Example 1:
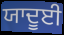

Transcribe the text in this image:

ਯਾਦੂਈ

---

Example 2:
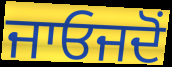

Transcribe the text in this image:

ਜਾਓਜਦੋਂ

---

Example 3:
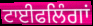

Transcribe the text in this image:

ਟਾਈਫਲਿੰਗਾਂ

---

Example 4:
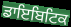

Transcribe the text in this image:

ਡਾਇਬਿਟਿਕ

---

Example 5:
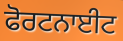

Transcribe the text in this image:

ਫੋਰਟਨਾਈਟ